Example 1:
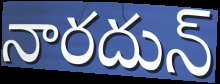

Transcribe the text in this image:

నారదున్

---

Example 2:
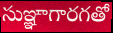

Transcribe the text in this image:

సుఞ్ఞాగారగతో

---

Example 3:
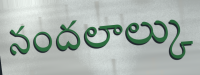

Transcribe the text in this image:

నందలాల్కు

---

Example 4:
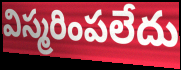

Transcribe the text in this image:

విస్మరింపలేదు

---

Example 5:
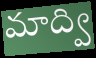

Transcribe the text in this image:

మాద్వి